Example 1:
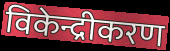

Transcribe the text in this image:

विकेन्द्रीकरण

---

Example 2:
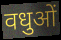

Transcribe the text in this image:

वधुओं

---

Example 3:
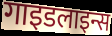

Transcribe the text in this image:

गाइडलाइन्स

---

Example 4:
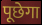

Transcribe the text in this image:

पूछेगा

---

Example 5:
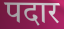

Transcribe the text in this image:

पदार